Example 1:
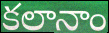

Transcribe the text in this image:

కలానాం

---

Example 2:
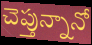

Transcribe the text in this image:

చెప్తున్నానో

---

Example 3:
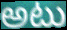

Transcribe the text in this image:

అటు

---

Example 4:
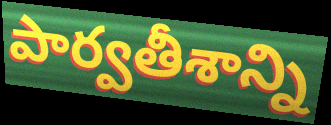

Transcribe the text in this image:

పార్వతీశాన్ని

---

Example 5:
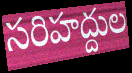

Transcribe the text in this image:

సరిహద్దుల